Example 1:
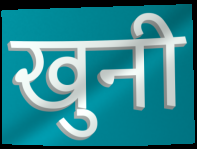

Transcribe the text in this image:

खुनी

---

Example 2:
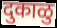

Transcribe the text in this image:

दुकाळु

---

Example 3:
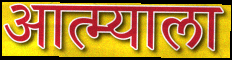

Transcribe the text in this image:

आत्म्याला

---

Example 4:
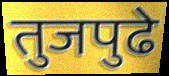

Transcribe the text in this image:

तुजपुढे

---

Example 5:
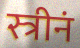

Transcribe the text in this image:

स्त्रीनं